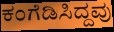
ಕಂಗೆಡಿಸಿದ್ದವು